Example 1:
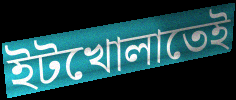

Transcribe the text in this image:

ইটখোলাতেই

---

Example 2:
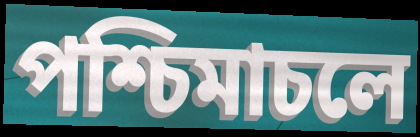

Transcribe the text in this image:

পশ্চিমাচলে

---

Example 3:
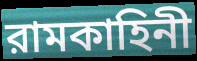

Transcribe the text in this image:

রামকাহিনী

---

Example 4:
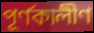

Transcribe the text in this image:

পূর্ণকালীণ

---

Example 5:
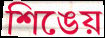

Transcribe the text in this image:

শিঙেয়